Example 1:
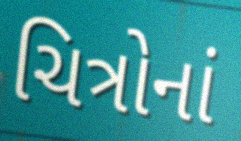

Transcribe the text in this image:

ચિત્રોનાં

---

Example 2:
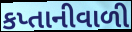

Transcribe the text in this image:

કપ્તાનીવાળી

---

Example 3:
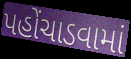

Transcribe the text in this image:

પહોંચાડવામાં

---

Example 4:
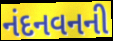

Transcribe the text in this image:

નંદનવનની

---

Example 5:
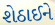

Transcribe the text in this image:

શેઠાઈને